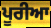
ਪੂਰੀਆ